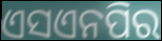
ଏସଏନପିର